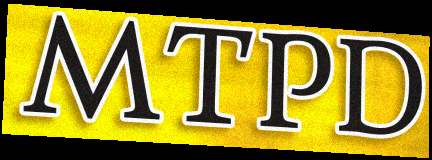
MTPD